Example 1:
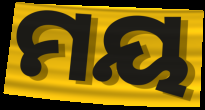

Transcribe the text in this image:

ମୟ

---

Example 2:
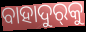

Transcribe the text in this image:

ବାହାଦୁର୍‌କୁ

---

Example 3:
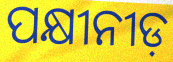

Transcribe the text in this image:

ପକ୍ଷୀନୀଡ଼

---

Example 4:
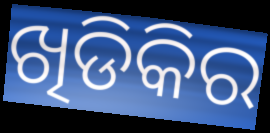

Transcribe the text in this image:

ଖିଡିକିର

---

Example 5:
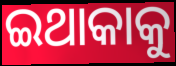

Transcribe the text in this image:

ଇଥାକାକୁ